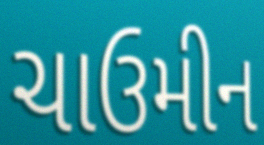
ચાઉમીન